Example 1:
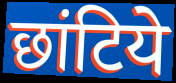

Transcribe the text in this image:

छांटिये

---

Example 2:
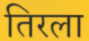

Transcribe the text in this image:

तिरला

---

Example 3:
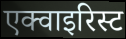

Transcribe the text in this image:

एक्वाइरिस्ट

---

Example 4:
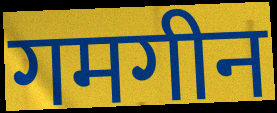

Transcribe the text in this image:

गमगीन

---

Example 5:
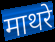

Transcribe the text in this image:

माथरे